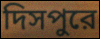
দিসপুরে